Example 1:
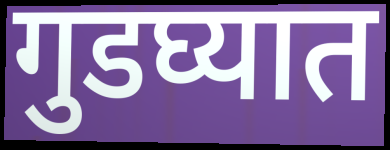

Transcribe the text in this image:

गुडघ्यात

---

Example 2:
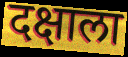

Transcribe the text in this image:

दक्षाला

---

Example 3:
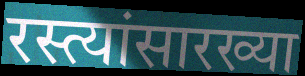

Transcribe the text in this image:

रस्त्यांसारख्या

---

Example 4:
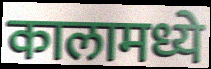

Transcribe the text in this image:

कालामध्ये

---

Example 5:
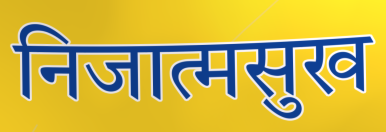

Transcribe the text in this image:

निजात्मसुख